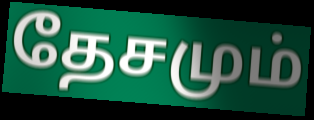
தேசமும்